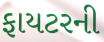
ફાયટરની